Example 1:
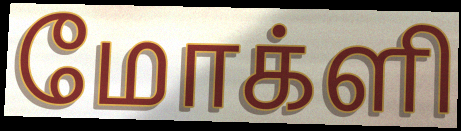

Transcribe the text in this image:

மோக்ளி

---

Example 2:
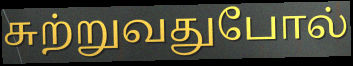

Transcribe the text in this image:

சுற்றுவதுபோல்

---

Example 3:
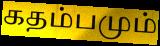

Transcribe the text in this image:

கதம்பமும்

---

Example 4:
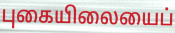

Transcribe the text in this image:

புகையிலையைப்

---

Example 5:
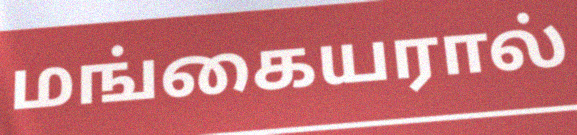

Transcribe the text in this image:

மங்கையரால்